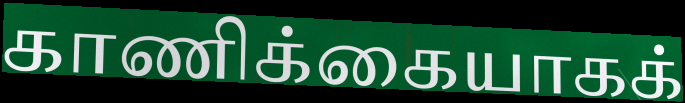
காணிக்கையாகக்